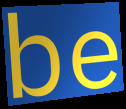
be